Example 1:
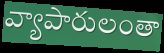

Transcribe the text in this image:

వ్యాపారులంతా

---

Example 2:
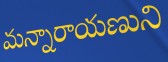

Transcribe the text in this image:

మన్నారాయణుని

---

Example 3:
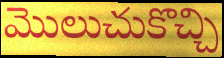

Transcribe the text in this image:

మొలుచుకొచ్చి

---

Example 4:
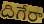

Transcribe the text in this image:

దిగేరా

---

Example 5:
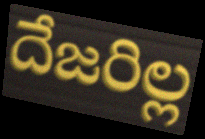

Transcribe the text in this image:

దేజరిల్ల